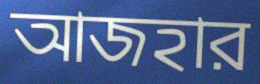
আজহার